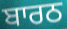
ਬਾਰਠ